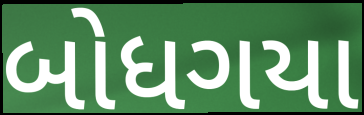
બોધગયા